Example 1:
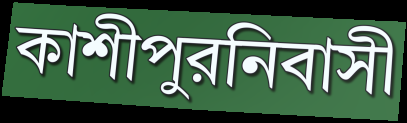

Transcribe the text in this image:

কাশীপুরনিবাসী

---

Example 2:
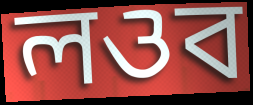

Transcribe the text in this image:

লওব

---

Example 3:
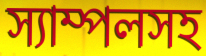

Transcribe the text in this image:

স্যাম্পলসহ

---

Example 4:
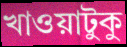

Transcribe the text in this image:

খাওয়াটুকু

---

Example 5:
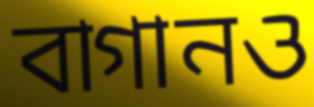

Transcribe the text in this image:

বাগানও